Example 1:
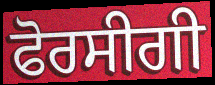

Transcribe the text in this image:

ਫੋਰਸੀਗੀ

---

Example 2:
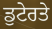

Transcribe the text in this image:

ਡੁਟੇਰਤੇ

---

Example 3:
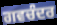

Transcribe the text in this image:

ਗਵਚੰਦਰ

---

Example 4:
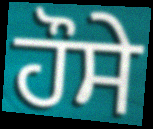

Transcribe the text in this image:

ਹੌਸੇ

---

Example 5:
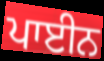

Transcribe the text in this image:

ਪਾਈਨ